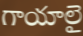
గాయాలై